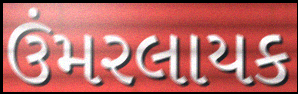
ઉંમરલાયક